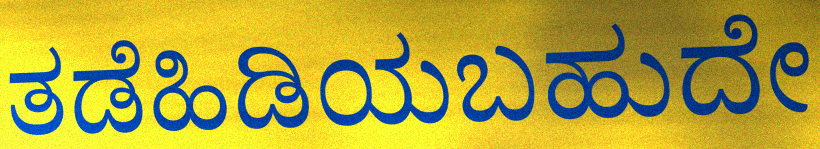
ತಡೆಹಿಡಿಯಬಹುದೇ